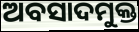
ଅବସାଦମୁକ୍ତ